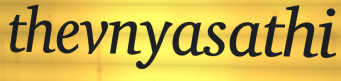
thevnyasathi